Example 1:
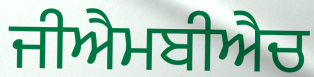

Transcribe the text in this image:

ਜੀਐਮਬੀਐਚ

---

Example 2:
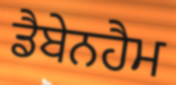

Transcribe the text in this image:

ਡੈਬੇਨਹੈਮ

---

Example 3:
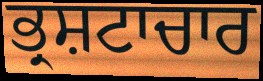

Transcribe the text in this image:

ਭ੍ਰਸ਼ਟਾਚਾਰ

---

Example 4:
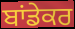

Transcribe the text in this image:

ਬਾਂਡੇਕਰ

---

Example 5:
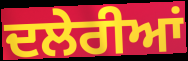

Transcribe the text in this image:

ਦਲੇਰੀਆਂ